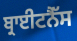
ਬ੍ਰਾਈਟਨੈੱਸ